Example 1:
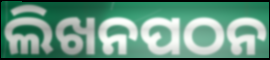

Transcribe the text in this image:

ଲିଖନପଠନ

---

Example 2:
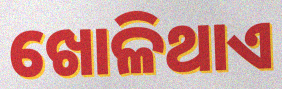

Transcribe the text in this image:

ଖୋଳିଥାଏ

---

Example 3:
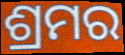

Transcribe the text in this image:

ଶ୍ରମର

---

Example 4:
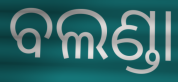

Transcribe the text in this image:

ବଲଣ୍ଡା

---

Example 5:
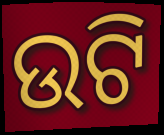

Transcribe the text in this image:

ଉଟି